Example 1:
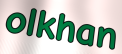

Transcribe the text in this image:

olkhan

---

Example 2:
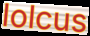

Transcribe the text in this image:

Iolcus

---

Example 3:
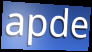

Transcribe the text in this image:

apde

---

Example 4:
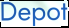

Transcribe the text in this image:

Depot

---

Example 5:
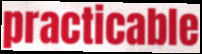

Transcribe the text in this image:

practicable